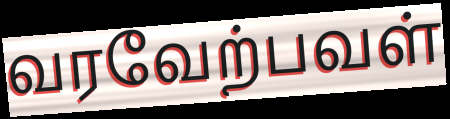
வரவேற்பவள்